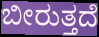
ಬೀರುತ್ತದೆ